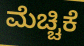
ಮೆಚ್ಚಿಕೆ